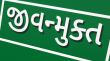
જીવન્મુક્ત